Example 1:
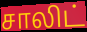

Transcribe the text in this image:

சாலிட்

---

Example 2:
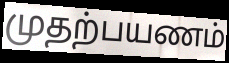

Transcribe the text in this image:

முதற்பயணம்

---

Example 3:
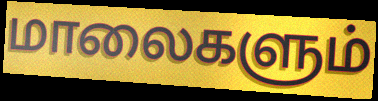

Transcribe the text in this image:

மாலைகளும்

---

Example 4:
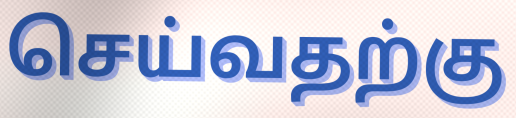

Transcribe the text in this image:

செய்வதற்கு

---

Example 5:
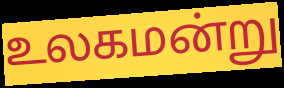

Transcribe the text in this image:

உலகமன்று